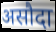
असौदा